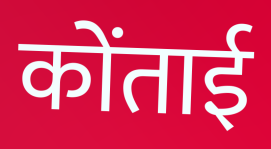
कोंताई